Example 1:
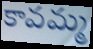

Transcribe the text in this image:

కావమ్మ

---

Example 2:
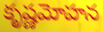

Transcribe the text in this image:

కృష్ణమోహన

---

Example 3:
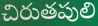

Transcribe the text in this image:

చిరుతపులి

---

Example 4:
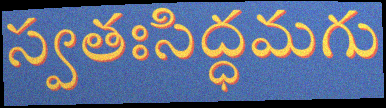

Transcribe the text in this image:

స్వతఃసిద్ధమగు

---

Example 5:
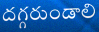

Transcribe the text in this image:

దగ్గరుండాలి